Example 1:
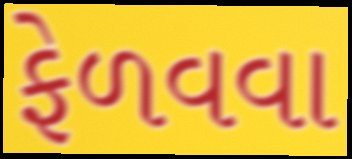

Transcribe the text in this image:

ફેળવવા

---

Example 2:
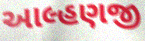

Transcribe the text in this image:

આલ્હણજી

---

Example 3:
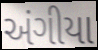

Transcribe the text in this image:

અંગીયા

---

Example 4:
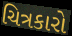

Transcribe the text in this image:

ચિત્રકારો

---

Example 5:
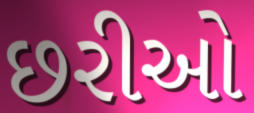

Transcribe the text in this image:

છરીઓ